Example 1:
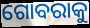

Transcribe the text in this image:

ଗୋବରାକୁ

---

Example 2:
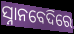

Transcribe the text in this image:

ସ୍ନାନବେଦିରେ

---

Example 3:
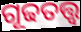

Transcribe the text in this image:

ଗୂଢତତ୍ତ୍ୱ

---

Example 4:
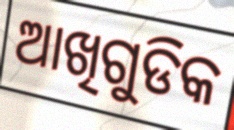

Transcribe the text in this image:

ଆଖିଗୁଡିକ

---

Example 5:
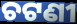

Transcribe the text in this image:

ଚଟଣୀ